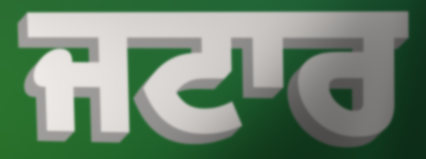
ਜਟਾਰ